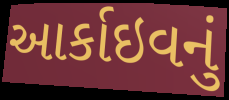
આર્કાઇવનું